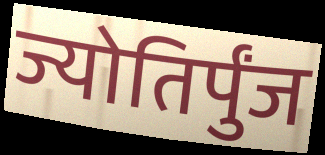
ज्योतिर्पुंज